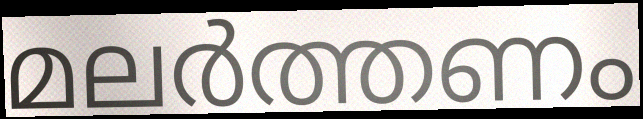
മലർത്തണം